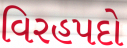
વિરહપદો